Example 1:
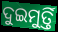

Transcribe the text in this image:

ଦୁଇମୁର୍ତ୍ତି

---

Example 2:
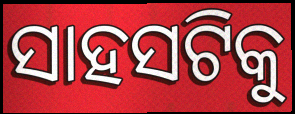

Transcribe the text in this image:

ସାହସଟିକୁ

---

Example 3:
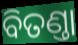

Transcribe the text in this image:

ବିତଣ୍ତା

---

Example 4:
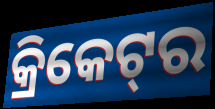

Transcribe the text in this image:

କ୍ରିକେଟ୍‌ର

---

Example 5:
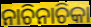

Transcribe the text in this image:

ନାଚିନାଚିକା